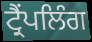
ਟ੍ਰੈਂਪਲਿੰਗ